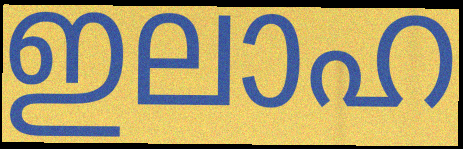
ഇലാഹ